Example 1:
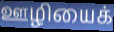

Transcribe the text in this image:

ஊழியைக்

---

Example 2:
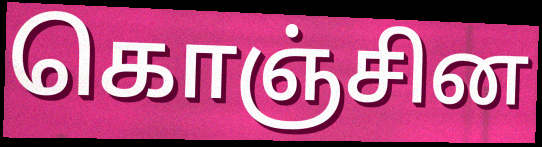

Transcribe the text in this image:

கொஞ்சின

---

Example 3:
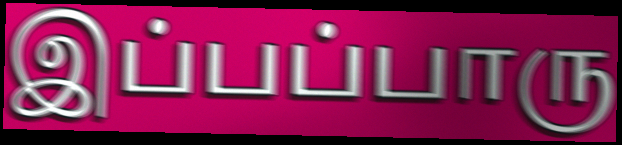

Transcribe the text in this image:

இப்பப்பாரு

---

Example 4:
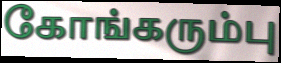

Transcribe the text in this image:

கோங்கரும்பு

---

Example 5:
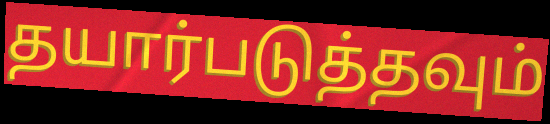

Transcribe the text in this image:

தயார்படுத்தவும்